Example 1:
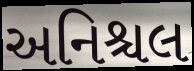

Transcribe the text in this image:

અનિશ્ચલ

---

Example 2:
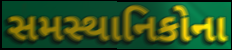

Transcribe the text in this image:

સમસ્થાનિકોના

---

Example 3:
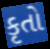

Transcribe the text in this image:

કૃતો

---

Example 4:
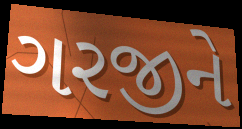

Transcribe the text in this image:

ગરજીને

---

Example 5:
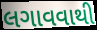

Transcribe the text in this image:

લગાવવાથી